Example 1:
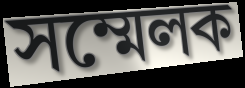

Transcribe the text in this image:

সম্মেলক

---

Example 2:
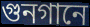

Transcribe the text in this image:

গুনগানে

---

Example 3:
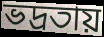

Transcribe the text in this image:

ভদ্রতায়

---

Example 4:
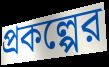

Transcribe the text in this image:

প্রকল্পের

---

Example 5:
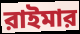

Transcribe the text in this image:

রাইমার